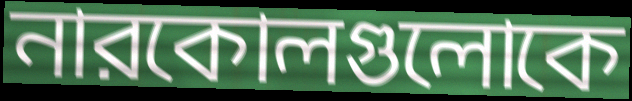
নারকোলগুলোকে